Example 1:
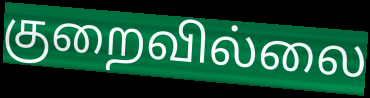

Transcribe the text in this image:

குறைவில்லை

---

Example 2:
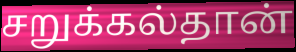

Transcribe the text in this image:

சறுக்கல்தான்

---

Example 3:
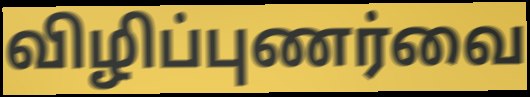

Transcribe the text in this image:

விழிப்புணர்வை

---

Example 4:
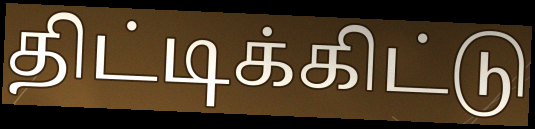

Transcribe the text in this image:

திட்டிக்கிட்டு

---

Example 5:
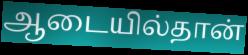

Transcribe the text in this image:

ஆடையில்தான்